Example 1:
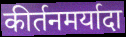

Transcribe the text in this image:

कीर्तनमर्यादा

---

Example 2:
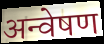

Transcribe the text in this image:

अन्वेषण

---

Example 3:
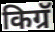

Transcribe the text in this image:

किग्रॅ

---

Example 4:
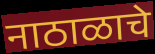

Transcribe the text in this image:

नाठाळाचे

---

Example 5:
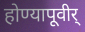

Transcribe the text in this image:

होण्यापूवीर्